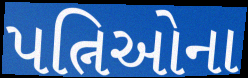
પત્નિઓના